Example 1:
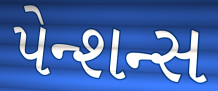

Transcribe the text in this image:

પેન્શન્સ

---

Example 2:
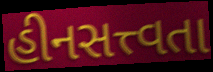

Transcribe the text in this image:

હીનસત્ત્વતા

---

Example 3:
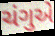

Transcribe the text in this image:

ચંગુએ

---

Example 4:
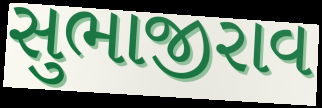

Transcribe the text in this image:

સુભાજીરાવ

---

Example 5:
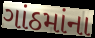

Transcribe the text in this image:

ગાંઠમાંના